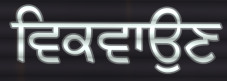
ਵਿਕਵਾਉਣ